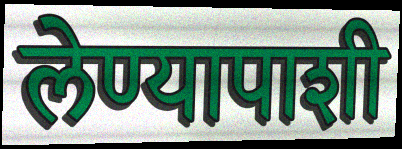
लेण्यापाशी